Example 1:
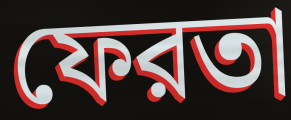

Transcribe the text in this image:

ফেরতা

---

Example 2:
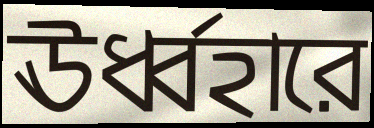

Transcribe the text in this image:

ঊর্ধ্বহারে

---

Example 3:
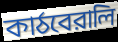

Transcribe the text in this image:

কাঠবেরালি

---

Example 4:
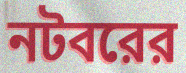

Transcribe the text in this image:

নটবরের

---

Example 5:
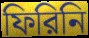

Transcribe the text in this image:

ফিরিনি